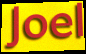
Joel